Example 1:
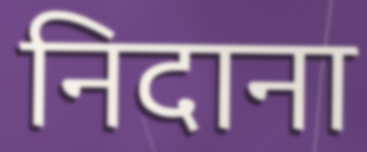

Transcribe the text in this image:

निदाना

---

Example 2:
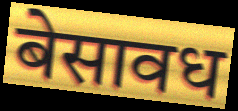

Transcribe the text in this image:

बेसावध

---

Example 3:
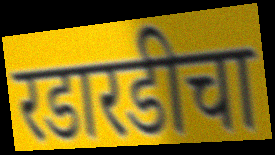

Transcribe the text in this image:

रडारडीचा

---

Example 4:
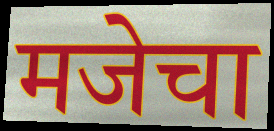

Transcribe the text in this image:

मजेचा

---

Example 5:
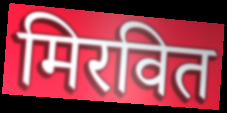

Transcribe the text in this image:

मिरवित